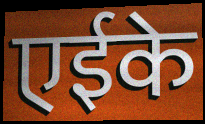
एईके